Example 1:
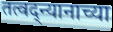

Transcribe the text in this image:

तत्वद्न्यानाच्या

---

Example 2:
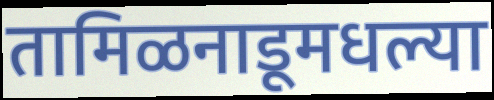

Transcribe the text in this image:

तामिळनाडूमधल्या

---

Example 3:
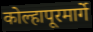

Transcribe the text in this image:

कोल्हापूरमार्गे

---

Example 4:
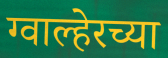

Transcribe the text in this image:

ग्वाल्हेरच्या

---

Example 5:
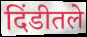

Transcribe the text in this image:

दिंडीतले